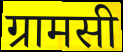
ग्रामसी